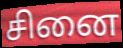
சினை